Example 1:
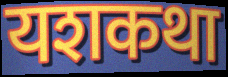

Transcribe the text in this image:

यशकथा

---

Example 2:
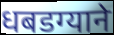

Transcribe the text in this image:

धबडग्याने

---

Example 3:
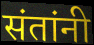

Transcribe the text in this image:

संतांनी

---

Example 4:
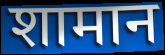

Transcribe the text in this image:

शामान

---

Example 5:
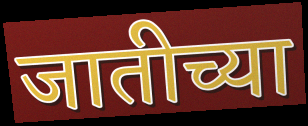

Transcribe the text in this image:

जातीच्या